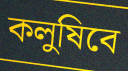
কলুষিবে